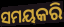
ସମୟକରି